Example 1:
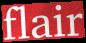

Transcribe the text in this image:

flair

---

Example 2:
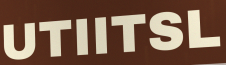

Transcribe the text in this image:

UTIITSL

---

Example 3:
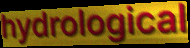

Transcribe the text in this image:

hydrological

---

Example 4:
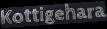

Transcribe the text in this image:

Kottigehara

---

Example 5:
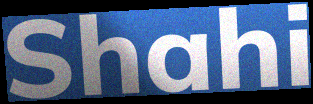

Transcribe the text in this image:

Shahi